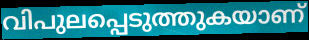
വിപുലപ്പെടുത്തുകയാണ്